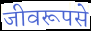
जीवरूपसे